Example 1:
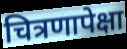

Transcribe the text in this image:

चित्रणापेक्षा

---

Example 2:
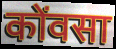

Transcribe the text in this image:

कोंवसा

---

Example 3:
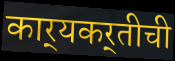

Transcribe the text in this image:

कार्यकर्तीची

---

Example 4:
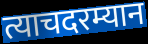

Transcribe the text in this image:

त्याचदरम्यान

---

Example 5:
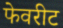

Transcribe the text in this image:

फेवरीट